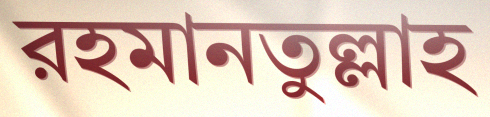
রহমানতুল্লাহ